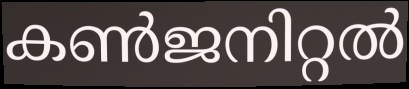
കൺജനിറ്റൽ